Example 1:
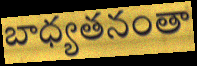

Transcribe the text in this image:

బాధ్యతనంతా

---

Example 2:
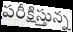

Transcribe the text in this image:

పరీక్షిస్తున్న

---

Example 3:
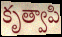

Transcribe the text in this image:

కృత్వాపి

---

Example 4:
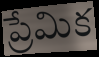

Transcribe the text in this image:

ప్రేమిక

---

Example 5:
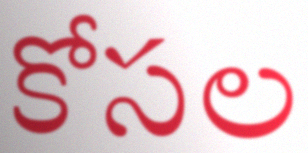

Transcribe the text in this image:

కోసల